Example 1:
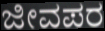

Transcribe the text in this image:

ಜೀವಪರ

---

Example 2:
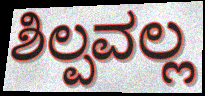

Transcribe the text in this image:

ಶಿಲ್ಪವಲ್ಲ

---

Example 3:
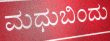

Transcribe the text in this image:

ಮಧುಬಿಂದು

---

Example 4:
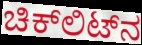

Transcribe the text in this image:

ಚಿಕ್‌ಲಿಟ್‌ನ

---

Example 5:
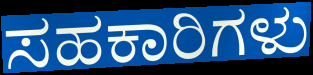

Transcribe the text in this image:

ಸಹಕಾರಿಗಳು